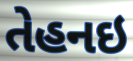
તેહનઇ